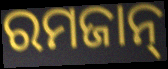
ରମଜାନ୍